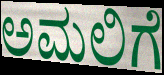
ಅಮಲಿಗೆ